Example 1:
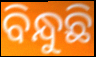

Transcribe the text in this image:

ବିନ୍ଧୁଛି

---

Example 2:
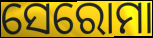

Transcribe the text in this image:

ସେରୋମା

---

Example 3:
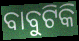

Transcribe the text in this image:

ବାବୁଟିକି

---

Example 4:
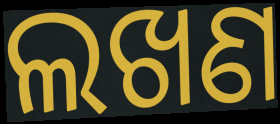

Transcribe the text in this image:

ଲଖଣ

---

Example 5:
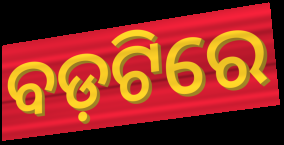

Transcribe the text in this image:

ବଡ଼ଟିରେ